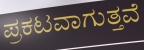
ಪ್ರಕಟವಾಗುತ್ತವೆ